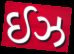
ઈઝ